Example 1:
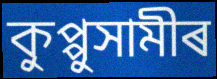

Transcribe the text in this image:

কুপ্পুসামীৰ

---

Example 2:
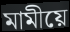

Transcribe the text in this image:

মামীয়ে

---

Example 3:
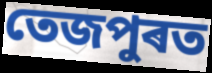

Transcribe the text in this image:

তেজপুৰত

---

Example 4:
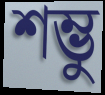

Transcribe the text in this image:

শম্ভু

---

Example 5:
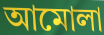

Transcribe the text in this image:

আমোলা